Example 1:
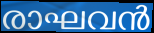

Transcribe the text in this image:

രാഘവൻ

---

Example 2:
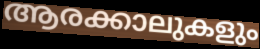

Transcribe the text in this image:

ആരക്കാലുകളും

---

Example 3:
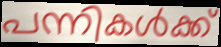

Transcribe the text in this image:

പന്നികൾക്ക്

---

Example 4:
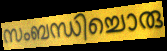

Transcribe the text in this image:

സംബന്ധിച്ചൊരു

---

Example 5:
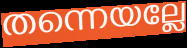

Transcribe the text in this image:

തന്നെയല്ലേ